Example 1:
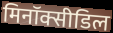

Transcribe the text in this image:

मिनॉक्सीडिल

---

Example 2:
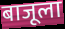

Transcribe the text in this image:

बाजूला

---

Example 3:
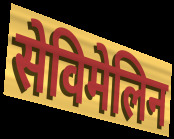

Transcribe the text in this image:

सेविमेलिन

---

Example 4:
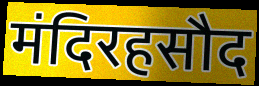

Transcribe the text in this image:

मंदिरहसौद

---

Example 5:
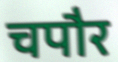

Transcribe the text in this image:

चपौर